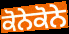
ਕੋਨੇਕੋਨੇ